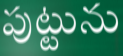
పుట్టును